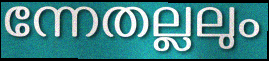
ന്നേതല്ലലും